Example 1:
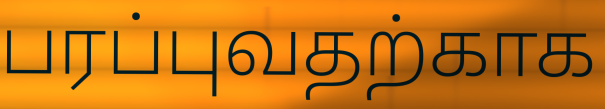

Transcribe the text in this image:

பரப்புவதற்காக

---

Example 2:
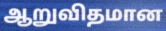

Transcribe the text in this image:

ஆறுவிதமான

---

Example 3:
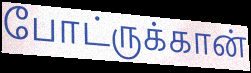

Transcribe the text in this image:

போட்ருக்கான்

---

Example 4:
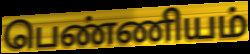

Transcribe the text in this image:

பெண்ணியம்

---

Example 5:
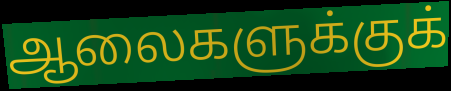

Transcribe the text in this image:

ஆலைகளுக்குக்